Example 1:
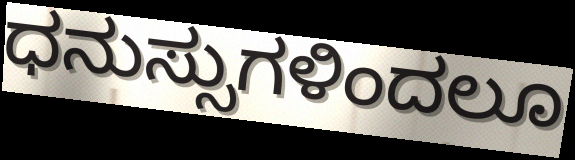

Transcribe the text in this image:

ಧನುಸ್ಸುಗಳಿಂದಲೂ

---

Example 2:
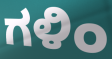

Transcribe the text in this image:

ಗಳಿಂ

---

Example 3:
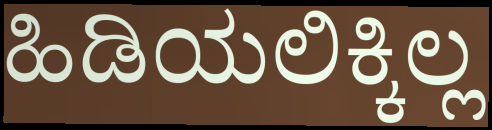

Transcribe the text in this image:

ಹಿಡಿಯಲಿಕ್ಕಿಲ್ಲ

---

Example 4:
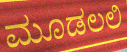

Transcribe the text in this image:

ಮೂಡಲಲಿ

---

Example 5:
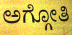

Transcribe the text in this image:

ಅಗ್ಗೋತಿ